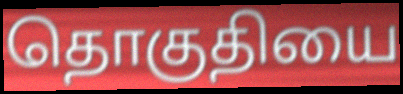
தொகுதியை